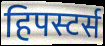
हिपस्टर्स